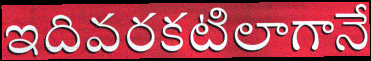
ఇదివరకటిలాగానే